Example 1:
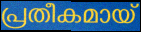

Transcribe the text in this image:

പ്രതീകമായ്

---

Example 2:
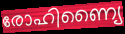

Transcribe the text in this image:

രോഹിണ്യൈ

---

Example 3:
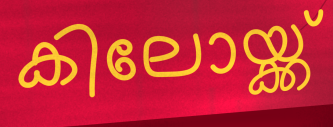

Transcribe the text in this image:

കിലോയ്ക്ക്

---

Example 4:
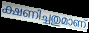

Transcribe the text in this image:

ക്ഷണിച്ചതുമാണ്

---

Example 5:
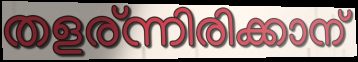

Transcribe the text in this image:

തളര്ന്നിരിക്കാന്